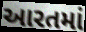
આરતમાં